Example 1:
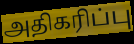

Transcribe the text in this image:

அதிகரிப்பு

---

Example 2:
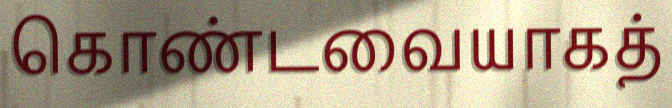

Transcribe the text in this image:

கொண்டவையாகத்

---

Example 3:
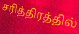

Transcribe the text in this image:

சரித்திரத்தில்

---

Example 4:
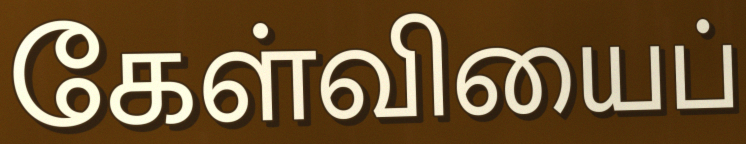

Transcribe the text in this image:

கேள்வியைப்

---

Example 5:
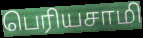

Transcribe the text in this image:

பெரியசாமி